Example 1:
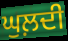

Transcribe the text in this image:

ਘੁਲ਼ਦੀ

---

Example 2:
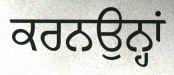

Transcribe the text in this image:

ਕਰਨਉਨ੍ਹਾਂ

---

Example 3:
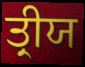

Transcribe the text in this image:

ਤ੍ਰੀਯ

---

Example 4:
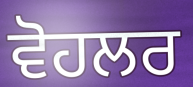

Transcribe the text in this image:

ਵੋਹਲਰ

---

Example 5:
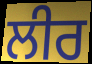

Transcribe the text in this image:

ਲੀਰ